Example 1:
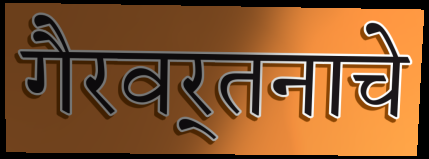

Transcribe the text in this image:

गैरवर्तनाचे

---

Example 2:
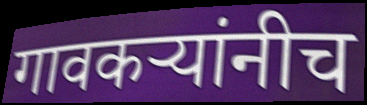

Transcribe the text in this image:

गावकऱ्यांनीच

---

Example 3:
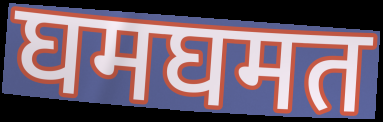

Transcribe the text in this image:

घमघमत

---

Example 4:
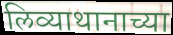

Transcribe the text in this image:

लिव्याथानाच्या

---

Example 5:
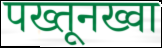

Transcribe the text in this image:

पख्तूनख्वा